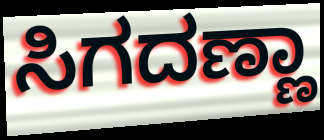
ಸಿಗದಣ್ಣಾ